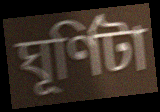
ঘূর্ণিটা